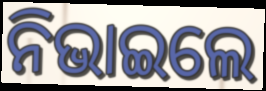
ନିଭାଇଲେ